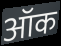
ऑक